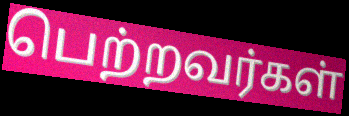
பெற்றவர்கள்